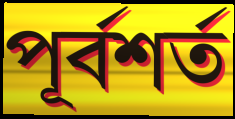
পূর্বশর্ত